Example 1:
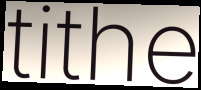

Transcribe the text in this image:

tithe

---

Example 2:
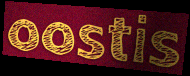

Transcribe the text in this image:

oostis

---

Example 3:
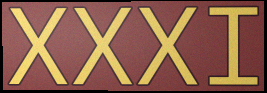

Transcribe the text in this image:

XXXI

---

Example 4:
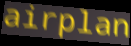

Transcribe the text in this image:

airplan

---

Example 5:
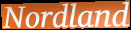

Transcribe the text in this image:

Nordland